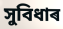
সুবিধাৰ